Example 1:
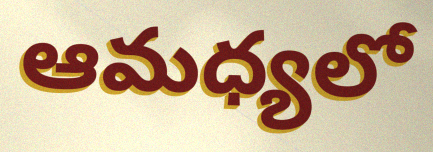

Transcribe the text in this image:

ఆమధ్యలో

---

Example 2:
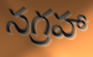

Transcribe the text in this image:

సగ్రహా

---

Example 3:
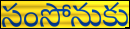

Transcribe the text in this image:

సంసోనుకు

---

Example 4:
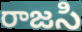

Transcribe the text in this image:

రాజసి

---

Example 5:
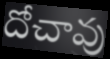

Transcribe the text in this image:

దోచావు